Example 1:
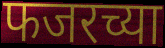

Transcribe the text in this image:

फजरच्या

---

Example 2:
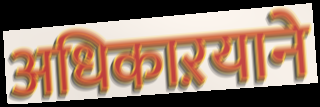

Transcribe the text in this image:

अधिकाऱयाने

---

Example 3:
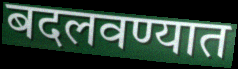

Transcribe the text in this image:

बदलवण्यात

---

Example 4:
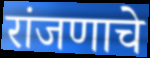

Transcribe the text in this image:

रांजणाचे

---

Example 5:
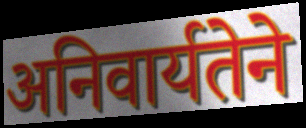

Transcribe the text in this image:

अनिवार्यतेने